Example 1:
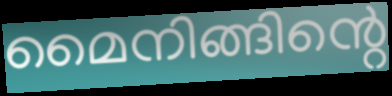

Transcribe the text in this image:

മൈനിങ്ങിന്റെ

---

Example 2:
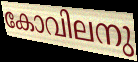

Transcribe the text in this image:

കോവിലനു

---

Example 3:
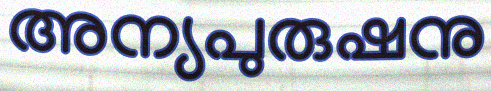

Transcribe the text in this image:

അന്യപുരുഷനു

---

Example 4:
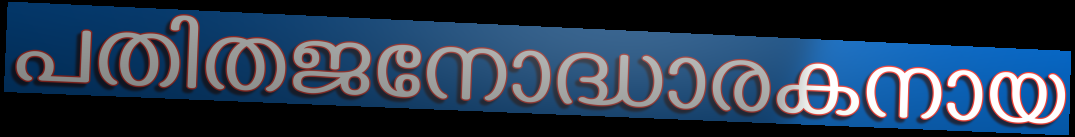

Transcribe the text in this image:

പതിതജനോദ്ധാരകനായ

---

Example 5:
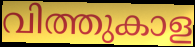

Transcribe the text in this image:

വിത്തുകാള